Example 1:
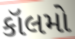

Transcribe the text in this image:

કૉલમો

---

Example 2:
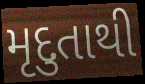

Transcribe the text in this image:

મૃદુતાથી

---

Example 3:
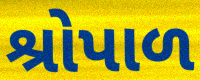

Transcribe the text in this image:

શ્રોપાળ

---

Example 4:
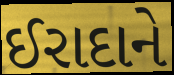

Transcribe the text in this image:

ઈરાદાને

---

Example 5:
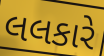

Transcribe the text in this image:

લલકારે